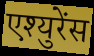
एश्युरेंस